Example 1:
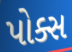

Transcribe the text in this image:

પોક્સ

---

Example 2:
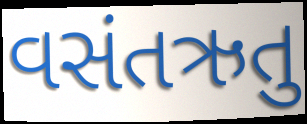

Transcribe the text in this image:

વસંતઋતુ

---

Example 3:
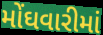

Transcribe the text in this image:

મોંઘવારીમાં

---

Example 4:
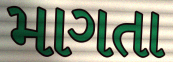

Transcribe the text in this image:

માગતા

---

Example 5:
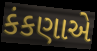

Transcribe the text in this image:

કંકણાએ